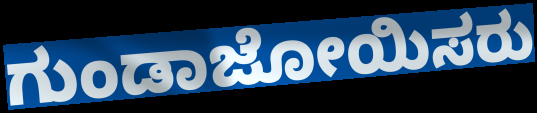
ಗುಂಡಾಜೋಯಿಸರು